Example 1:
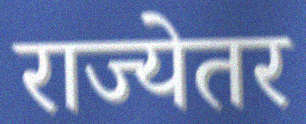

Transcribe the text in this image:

राज्येतर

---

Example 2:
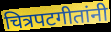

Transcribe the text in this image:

चित्रपटगीतांनी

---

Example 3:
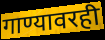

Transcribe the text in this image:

गाण्यावरही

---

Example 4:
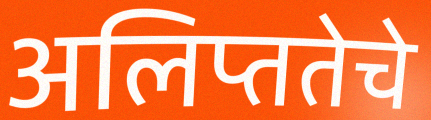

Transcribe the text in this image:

अलिप्ततेचे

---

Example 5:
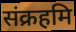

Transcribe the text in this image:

संक्रहमि